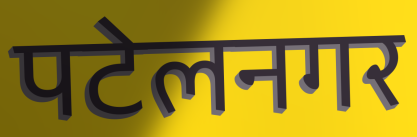
पटेलनगर